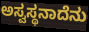
ಅಸ್ವಸ್ಥನಾದೆನು